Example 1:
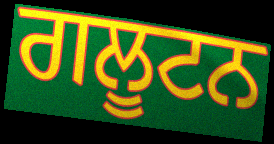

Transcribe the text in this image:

ਗਲੂਟਨ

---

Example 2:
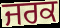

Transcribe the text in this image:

ਜਰਕ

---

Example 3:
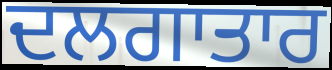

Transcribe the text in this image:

ਦਲਗਾਤਾਰ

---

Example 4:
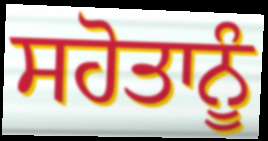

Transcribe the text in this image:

ਸਹੋਤਾਨੂੰ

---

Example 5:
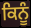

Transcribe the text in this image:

ਕਿਨੂੰ